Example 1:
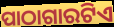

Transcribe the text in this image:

ପାଠାଗାରଟିଏ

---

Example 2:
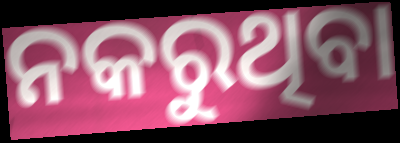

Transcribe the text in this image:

ନକରୁଥିବା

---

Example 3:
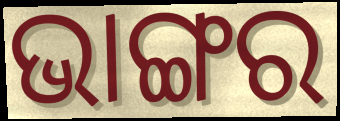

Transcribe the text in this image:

ଭାଙ୍ଗର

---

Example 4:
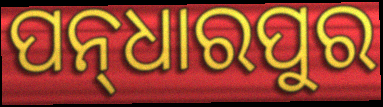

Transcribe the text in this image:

ପନ୍‌ଧାରପୁର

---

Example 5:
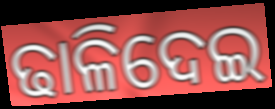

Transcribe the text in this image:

ଢାଳିଦେଇ